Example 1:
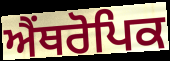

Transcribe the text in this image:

ਐਂਥਰੋਪਿਕ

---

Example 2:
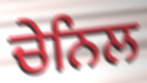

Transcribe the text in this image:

ਚੇਨਿਲ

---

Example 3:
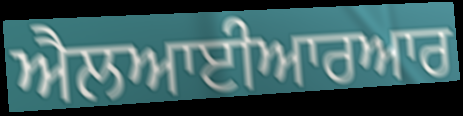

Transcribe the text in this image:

ਐਲਆਈਆਰਆਰ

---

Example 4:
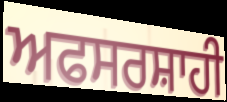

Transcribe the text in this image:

ਅਫਸਰਸ਼ਾਹੀ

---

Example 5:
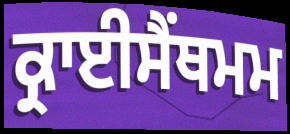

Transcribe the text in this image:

ਕ੍ਰਾਈਸੈਂਥਮਮ